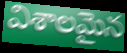
విశాలమైన